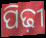
ପିଢ଼ୀ